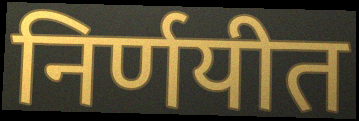
निर्णयीत